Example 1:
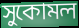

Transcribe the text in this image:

সুকোমল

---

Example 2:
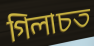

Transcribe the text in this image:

গিলাচত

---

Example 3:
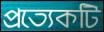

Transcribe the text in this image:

প্ৰত্যেকটি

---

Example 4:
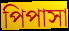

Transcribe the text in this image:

পিপাসা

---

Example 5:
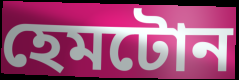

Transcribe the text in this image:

হেমটোন